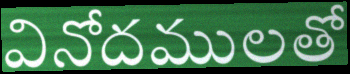
వినోదములతో